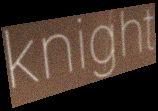
knight